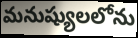
మనుష్యులలోను